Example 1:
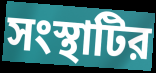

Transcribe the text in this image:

সংস্থাটির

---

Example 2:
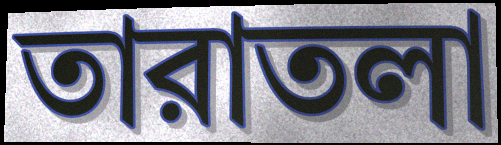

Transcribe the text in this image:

তারাতলা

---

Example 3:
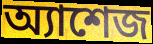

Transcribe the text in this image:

অ্যাশেজ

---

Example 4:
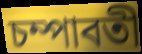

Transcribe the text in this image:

চম্পাবতী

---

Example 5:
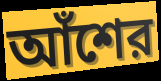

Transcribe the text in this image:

আঁশের